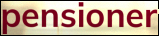
pensioner